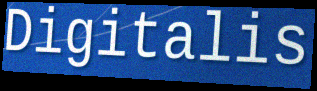
Digitalis